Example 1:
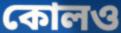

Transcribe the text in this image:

কোলও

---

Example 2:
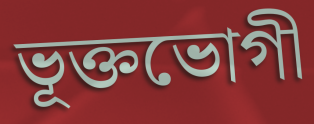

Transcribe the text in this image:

ভূক্তভোগী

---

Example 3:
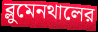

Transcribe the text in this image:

ব্লুমেনথালের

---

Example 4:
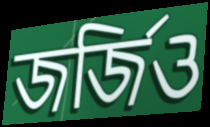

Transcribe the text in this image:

জর্জিও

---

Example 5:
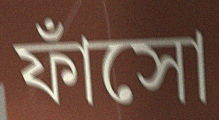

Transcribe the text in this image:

ফাঁসো